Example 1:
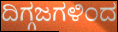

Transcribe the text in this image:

ದಿಗ್ಗಜಗಳಿಂದ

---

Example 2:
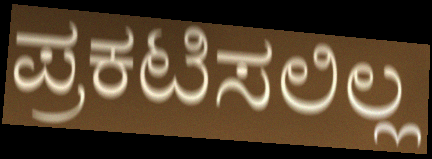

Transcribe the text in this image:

ಪ್ರಕಟಿಸಲಿಲ್ಲ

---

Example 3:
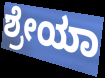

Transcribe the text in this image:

ಶ್ರೇಯಾ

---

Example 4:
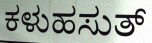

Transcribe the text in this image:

ಕಳುಹಸುತ್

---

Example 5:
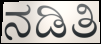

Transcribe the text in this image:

ನಡಿತಿ